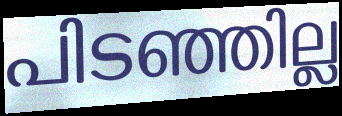
പിടഞ്ഞില്ല